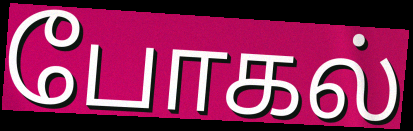
போகல்